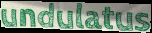
undulatus